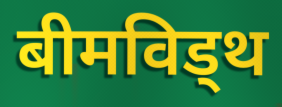
बीमविड्थ